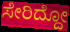
ಸೇರಿದ್ದೋ